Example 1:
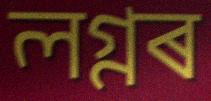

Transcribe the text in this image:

লগ্নৰ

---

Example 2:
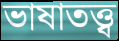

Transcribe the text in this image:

ভাষাতত্ত্ব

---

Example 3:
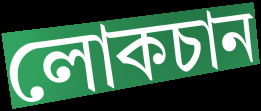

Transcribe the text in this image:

লোকচান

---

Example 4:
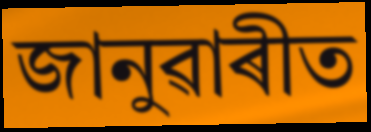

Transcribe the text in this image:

জানুৱাৰীত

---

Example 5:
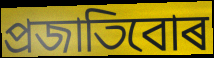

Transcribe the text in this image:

প্ৰজাতিবোৰ